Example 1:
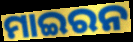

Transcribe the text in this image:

ମାଇରନ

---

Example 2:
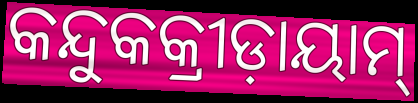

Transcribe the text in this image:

କନ୍ଦୁକକ୍ରୀଡ଼ାୟାମ୍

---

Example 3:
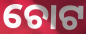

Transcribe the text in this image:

ଚୋଟ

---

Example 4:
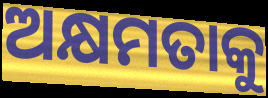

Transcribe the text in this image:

ଅକ୍ଷମତାକୁ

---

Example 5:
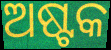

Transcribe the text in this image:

ଅଷ୍ଟକ